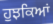
ਹੁਝਕਿਆਂ